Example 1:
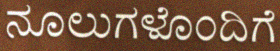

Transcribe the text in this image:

ನೂಲುಗಳೊಂದಿಗೆ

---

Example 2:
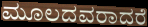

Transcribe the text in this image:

ಮೂಲದವರಾದರೆ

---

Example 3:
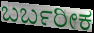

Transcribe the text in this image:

ಬರ್ಬರೀಕ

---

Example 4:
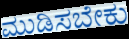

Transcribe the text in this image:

ಮುಡಿಸಬೇಕು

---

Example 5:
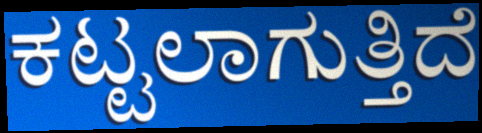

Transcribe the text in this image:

ಕಟ್ಟಲಾಗುತ್ತಿದೆ